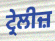
ਟ੍ਰੇਲੀਜ਼